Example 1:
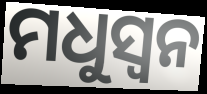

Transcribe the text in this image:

ମଧୁସ୍ୱନ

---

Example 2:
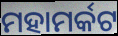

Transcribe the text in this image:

ମହାମର୍କଟ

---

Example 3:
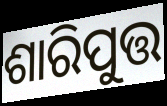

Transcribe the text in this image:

ଶାରିପୁତ୍ତ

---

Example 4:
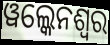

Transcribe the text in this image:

ୱଲ୍କେନଶ୍ୱର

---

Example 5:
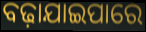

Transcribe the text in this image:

ବଢ଼ାଯାଇପାରେ